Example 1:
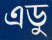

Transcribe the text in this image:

এডু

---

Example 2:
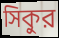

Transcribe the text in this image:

সিকুর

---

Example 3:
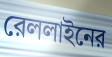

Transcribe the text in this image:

রেললাইনের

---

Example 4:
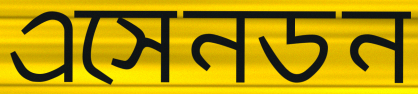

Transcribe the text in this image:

এসেনডন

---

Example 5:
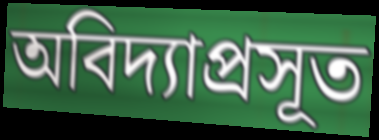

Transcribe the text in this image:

অবিদ্যাপ্রসূত